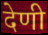
देणी